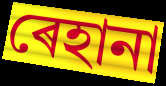
ৰেহানা